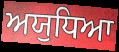
ਅਯੁਧਿਆ